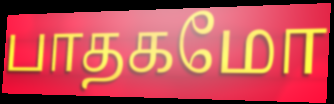
பாதகமோ